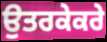
ਉਤਰਕੇਕਰੇ